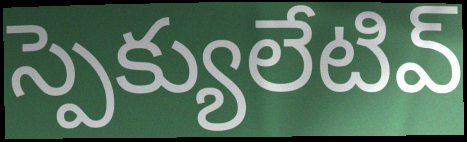
స్పెక్యులేటివ్